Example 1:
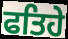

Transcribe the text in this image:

ਫਤਿਹੇ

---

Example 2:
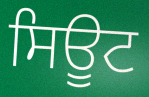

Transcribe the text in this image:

ਸਿਊਟ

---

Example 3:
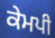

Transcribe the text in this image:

ਕੇਮਪੀ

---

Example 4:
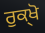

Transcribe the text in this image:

ਰੁਕ੍ਖੋ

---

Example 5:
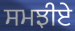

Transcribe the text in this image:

ਸਮਝੀਏ